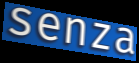
senza